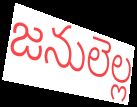
జనులెల్ల